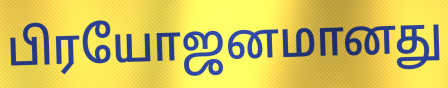
பிரயோஜனமானது